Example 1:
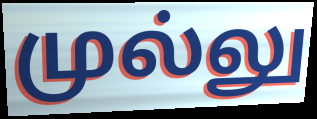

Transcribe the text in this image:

முல்லு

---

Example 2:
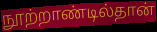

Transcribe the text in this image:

நூற்றாண்டில்தான்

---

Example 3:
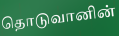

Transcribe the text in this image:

தொடுவானின்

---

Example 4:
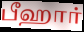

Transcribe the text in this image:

பீஹார்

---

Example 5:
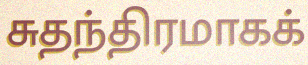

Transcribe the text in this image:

சுதந்திரமாகக்